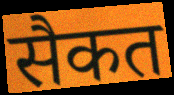
सैकत